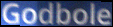
Godbole